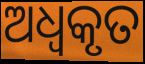
ଅଧ୍ବକୃତ